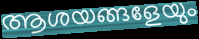
ആശയങ്ങളേയും